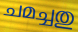
ചമച്ചതു